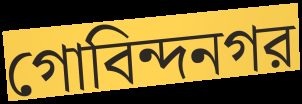
গোবিন্দনগর